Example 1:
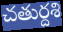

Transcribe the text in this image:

చతుర్దశి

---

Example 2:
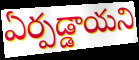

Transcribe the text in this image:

ఏర్పడ్డాయని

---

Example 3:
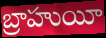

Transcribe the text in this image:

బ్రాహుయీ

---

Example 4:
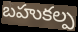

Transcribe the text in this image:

బహుకల్ప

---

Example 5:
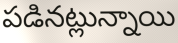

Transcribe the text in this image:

పడినట్లున్నాయి